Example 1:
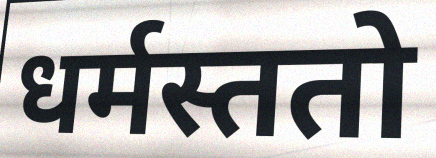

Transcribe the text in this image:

धर्मस्ततो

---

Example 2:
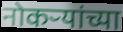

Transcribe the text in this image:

नोकऱ्यांच्या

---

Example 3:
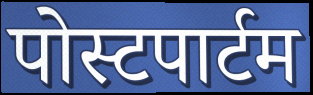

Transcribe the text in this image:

पोस्टपार्टम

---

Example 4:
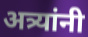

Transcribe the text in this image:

अत्र्यांनी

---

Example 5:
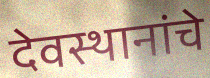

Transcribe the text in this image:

देवस्थानांचे